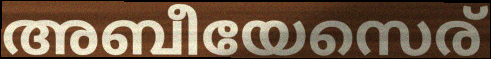
അബീയേസെര്